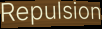
Repulsion